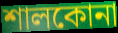
শালকোনা